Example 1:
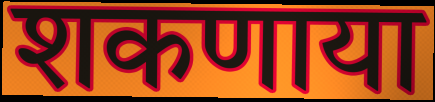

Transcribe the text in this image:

शकणाया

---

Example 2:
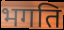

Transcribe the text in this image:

भगति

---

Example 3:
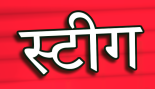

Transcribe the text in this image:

स्टीग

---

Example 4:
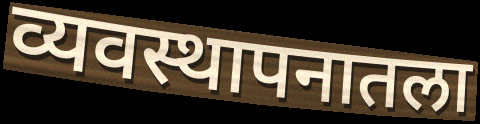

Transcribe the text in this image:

व्यवस्थापनातला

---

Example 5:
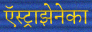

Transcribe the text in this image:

ऍस्ट्राझेनेका